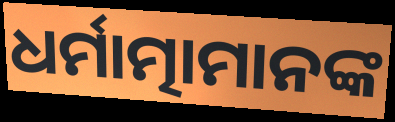
ଧର୍ମାତ୍ମାମାନଙ୍କ